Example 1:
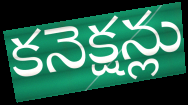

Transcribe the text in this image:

కనెక్షన్లు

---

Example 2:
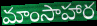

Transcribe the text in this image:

మాంసాహార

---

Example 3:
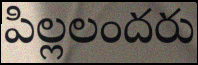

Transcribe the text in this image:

పిల్లలందరు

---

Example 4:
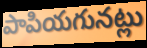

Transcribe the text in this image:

పాపియగునట్లు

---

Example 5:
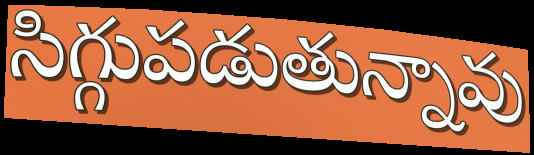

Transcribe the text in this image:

సిగ్గుపడుతున్నావు